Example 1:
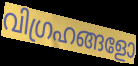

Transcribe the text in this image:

വിഗ്രഹങ്ങളോ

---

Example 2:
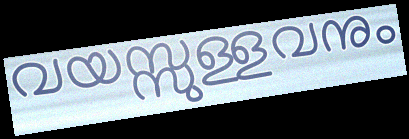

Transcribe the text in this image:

വയസ്സുള്ളവനും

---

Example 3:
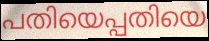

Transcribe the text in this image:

പതിയെപ്പതിയെ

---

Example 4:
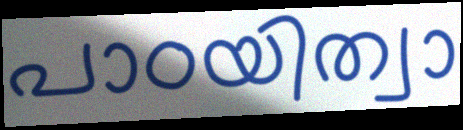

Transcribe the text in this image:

പാഠയിത്വാ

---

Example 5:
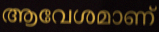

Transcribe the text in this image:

ആവേശമാണ്